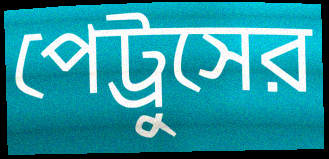
পেট্রুসের